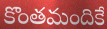
కొంతమందికే